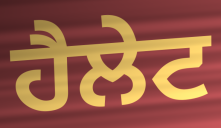
ਹੈਲੇਟ